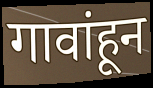
गावांहून